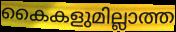
കൈകളുമില്ലാത്ത